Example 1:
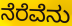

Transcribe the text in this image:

ನೆರೆವೆನು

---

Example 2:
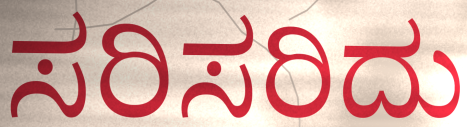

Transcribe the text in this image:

ಸರಿಸರಿದು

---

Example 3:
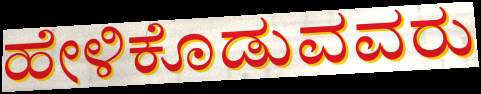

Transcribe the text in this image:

ಹೇಳಿಕೊಡುವವರು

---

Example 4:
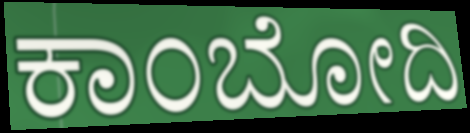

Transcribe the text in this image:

ಕಾಂಬೋದಿ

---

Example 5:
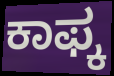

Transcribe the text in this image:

ಕಾಫ್ಕ